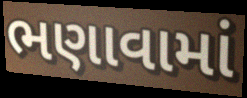
ભણાવામાં